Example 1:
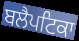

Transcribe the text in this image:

ਬਲੈਪਟਿਕਾ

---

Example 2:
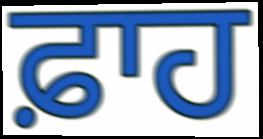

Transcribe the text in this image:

ਫ਼ਾਹ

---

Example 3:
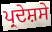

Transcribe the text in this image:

ਪ੍ਰਦੇਸ਼ਸੇ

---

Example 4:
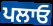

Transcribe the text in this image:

ਪਲਾਓ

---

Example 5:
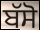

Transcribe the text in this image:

ਬੱਸੋ